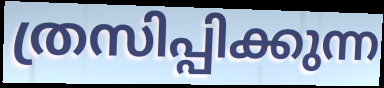
ത്രസിപ്പിക്കുന്ന